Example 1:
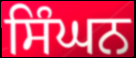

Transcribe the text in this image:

ਸਿੰਘਨ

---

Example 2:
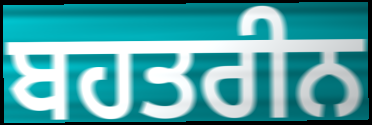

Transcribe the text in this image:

ਬਹਤਰੀਨ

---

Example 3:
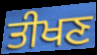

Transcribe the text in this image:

ਤੀਖਣ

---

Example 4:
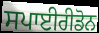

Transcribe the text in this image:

ਸਪਾਈਰੀਡੋਨ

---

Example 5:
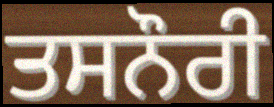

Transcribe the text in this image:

ਤਸਨੌਰੀ